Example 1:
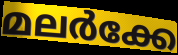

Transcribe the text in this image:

മലർക്കേ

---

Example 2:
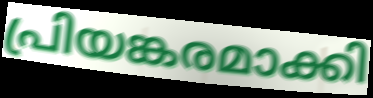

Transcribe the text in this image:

പ്രിയങ്കരമാക്കി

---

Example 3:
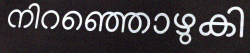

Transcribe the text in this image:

നിറഞ്ഞൊഴുകി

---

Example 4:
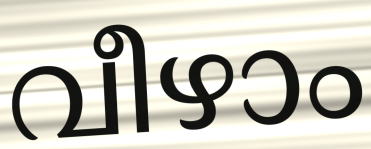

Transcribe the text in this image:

വീഴാം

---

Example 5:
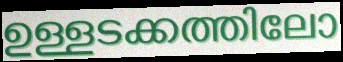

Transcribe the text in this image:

ഉള്ളടക്കത്തിലോ